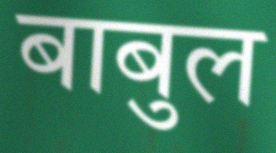
बाबुल